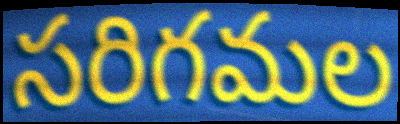
సరిగమల